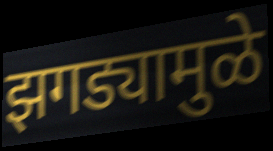
झगड्यामुळे